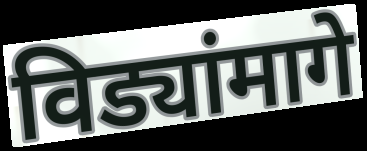
विड्यांमागे